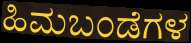
ಹಿಮಬಂಡೆಗಳ